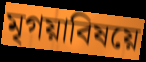
মৃগয়াবিষয়ে